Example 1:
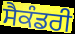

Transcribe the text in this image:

ਸੈਕੰਡਰੀ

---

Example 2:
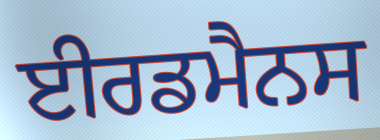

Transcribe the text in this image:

ਈਰਡਮੈਨਸ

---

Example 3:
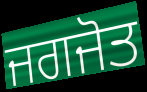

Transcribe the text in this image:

ਜਗਜੋਤ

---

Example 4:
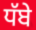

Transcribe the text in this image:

ਧੱਬੇ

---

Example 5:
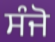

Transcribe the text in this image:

ਸੰਜੋ